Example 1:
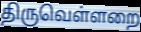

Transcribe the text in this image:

திருவெள்ளறை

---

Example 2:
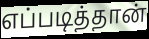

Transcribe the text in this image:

எப்படித்தான்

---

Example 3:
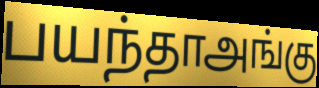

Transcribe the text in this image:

பயந்தாஅங்கு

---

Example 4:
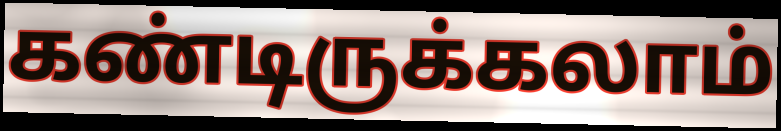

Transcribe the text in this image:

கண்டிருக்கலாம்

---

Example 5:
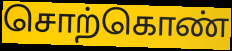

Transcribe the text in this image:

சொற்கொண்